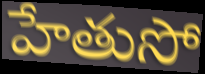
హేతుసో